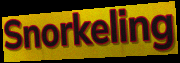
Snorkeling